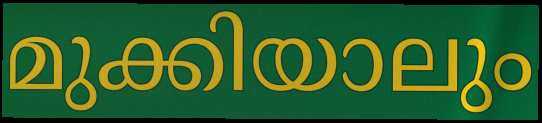
മുക്കിയാലും